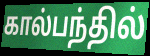
கால்பந்தில்